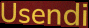
Usendi